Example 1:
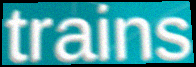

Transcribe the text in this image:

trains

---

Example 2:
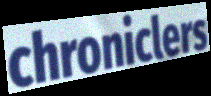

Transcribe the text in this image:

chroniclers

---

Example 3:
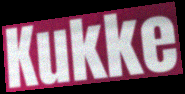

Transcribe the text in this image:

Kukke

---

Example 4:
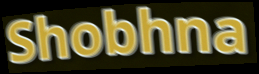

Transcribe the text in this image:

Shobhna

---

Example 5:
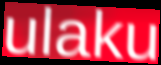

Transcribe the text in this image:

ulaku